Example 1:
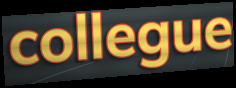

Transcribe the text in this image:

collegue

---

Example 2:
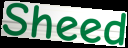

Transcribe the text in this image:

Sheed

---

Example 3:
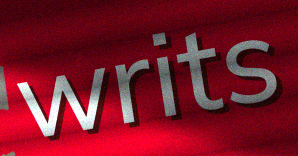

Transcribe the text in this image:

writs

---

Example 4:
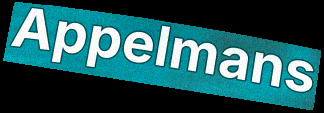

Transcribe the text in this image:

Appelmans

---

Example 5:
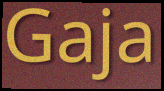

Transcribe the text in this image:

Gaja